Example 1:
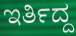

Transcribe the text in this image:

ಇರ್ತಿದ್ದ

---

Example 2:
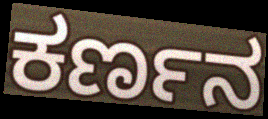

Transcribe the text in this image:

ಕರ್ಣನ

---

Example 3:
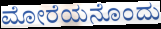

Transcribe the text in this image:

ಮೋರೆಯನೊಂದು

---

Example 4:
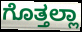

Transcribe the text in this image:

ಗೊತ್ತಲ್ಲಾ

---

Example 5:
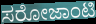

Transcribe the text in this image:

ಸರೋಜಾಂಟಿ